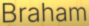
Braham